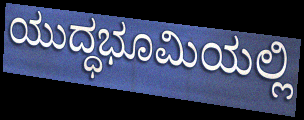
ಯುದ್ಧಭೂಮಿಯಲ್ಲಿ